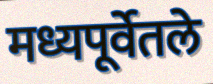
मध्यपूर्वेतले